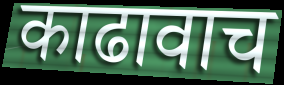
काढावाच